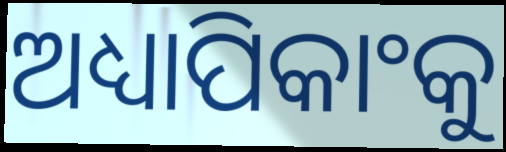
ଅଧ୍ୟାପିକାଂକୁ